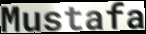
Mustafa